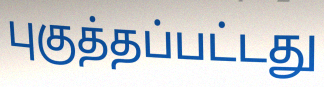
புகுத்தப்பட்டது